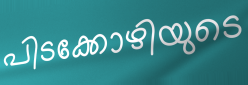
പിടക്കോഴിയുടെ